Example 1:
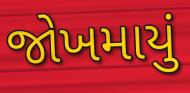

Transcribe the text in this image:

જોખમાયું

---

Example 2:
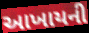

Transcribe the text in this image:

આખાયની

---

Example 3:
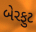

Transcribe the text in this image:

બેરફુટ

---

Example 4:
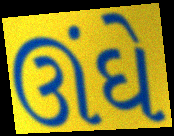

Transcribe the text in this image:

ઊંઘે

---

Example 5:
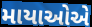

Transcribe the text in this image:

માયાઓએ